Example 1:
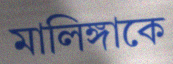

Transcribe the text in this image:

মালিঙ্গাকে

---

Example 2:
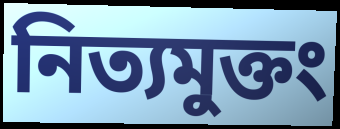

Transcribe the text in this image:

নিত্যমুক্তং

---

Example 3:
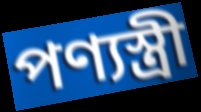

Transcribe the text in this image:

পণ্যস্ত্রী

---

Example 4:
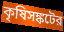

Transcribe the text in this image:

কৃষিসঙ্কটের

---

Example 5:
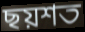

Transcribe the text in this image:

ছয়শত